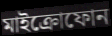
মাইক্রোফোন